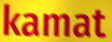
kamat